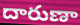
దారుణా